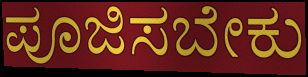
ಪೂಜಿಸಬೇಕು